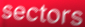
sectors